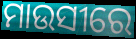
ମାଉସୀରେ